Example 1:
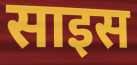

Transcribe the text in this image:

साइस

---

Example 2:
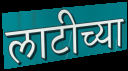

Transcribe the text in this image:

लाटीच्या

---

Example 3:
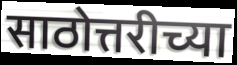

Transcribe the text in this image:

साठोत्तरीच्या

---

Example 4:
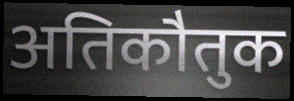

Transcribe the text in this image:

अतिकौतुक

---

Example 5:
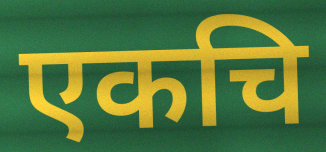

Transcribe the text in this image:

एकचि